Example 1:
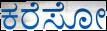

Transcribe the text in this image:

ಕರೆಸೋ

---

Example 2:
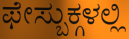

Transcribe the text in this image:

ಫೇಸ್ಬುಕ್ಗಳಲ್ಲಿ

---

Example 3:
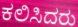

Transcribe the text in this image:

ಕಲಿಸಿದರು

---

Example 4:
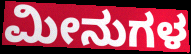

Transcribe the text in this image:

ಮೀನುಗಳ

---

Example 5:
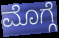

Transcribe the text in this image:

ಮೊಗ್ಗೆ